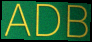
ADB